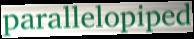
parallelopiped